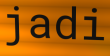
jadi